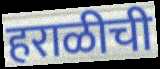
हराळीची